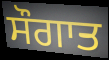
ਸੌਗਾਤ